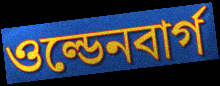
ওল্ডেনবার্গ